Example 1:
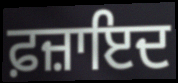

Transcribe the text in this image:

ਫ਼ਜ਼ਾਇਦ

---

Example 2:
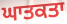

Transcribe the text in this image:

ਘਾਤਕਤਾ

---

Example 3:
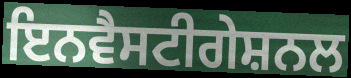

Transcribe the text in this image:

ਇਨਵੈਸਟੀਗੇਸ਼ਨਲ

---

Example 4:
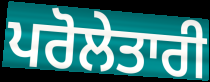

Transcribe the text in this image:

ਪਰੋਲੇਤਾਰੀ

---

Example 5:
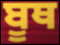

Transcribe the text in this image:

ਬੂਥ